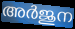
അർജുന